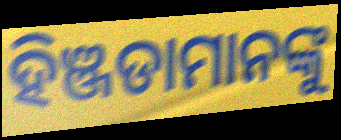
ହିଞ୍ଜଡାମାନଙ୍କୁ